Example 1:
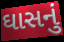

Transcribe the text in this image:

ઘાસનું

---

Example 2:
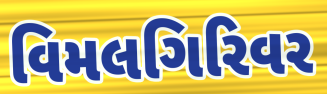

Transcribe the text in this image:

વિમલગિરિવર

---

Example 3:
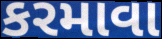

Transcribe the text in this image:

કરમાવા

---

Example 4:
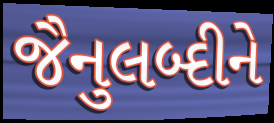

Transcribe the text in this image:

જૈનુલબ્દીને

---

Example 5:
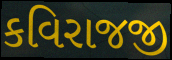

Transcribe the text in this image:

કવિરાજજી